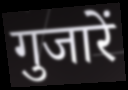
गुजारें